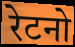
रेटनो